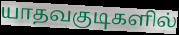
யாதவகுடிகளில்